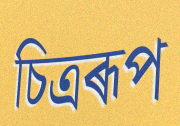
চিত্ৰৰূপ